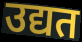
उद्यत